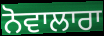
ਨੋਵਾਲਾਰਾ